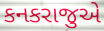
કનકરાજુએ